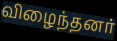
விழைந்தனர்